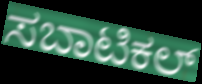
ಸಬಾಟಿಕಲ್